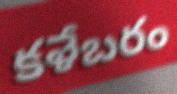
కళేబరం